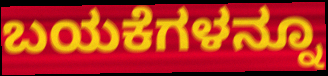
ಬಯಕೆಗಳನ್ನೂ